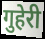
गुहेरी